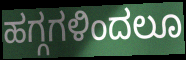
ಹಗ್ಗಗಳಿಂದಲೂ